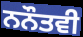
ਨਨੌਤਵੀ